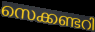
സെക്കണ്ടറി